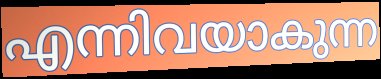
എന്നിവയാകുന്ന